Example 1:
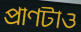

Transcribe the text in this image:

প্রাণটাও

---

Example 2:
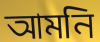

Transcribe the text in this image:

আমনি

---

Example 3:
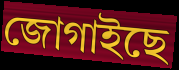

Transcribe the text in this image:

জোগাইছে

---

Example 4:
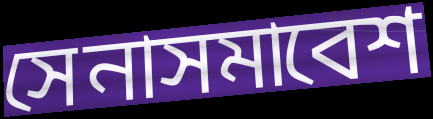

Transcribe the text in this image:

সেনাসমাবেশ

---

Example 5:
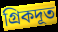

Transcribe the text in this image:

গ্রিকদূত